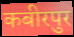
कबीरपुर